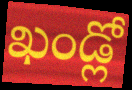
ఖండ్లో